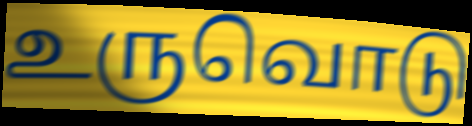
உருவொடு